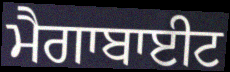
ਮੈਗਾਬਾਈਟ